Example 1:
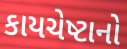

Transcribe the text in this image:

કાયચેષ્ટાનો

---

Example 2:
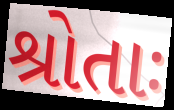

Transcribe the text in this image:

શ્રોતાઃ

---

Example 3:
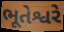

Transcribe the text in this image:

ભૂતેશ્વરે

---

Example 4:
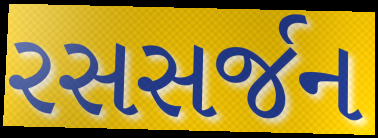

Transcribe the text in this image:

રસસર્જન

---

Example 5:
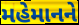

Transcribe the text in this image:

મહેમાનને